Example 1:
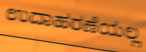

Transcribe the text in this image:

ಉದಾಹರಣೆಯಲ್ಲ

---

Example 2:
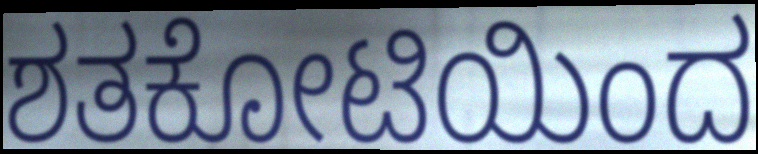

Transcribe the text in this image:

ಶತಕೋಟಿಯಿಂದ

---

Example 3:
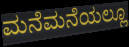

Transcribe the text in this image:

ಮನೆಮನೆಯಲ್ಲೂ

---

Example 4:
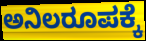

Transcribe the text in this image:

ಅನಿಲರೂಪಕ್ಕೆ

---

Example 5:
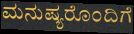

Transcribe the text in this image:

ಮನುಷ್ಯರೊಂದಿಗೆ